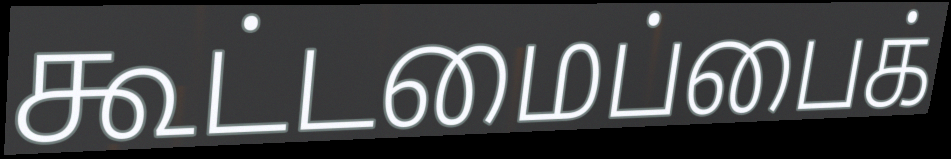
கூட்டமைப்பைக்